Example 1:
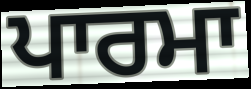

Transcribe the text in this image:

ਪਾਰਮਾ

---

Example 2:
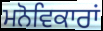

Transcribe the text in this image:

ਮਨੋਵਿਕਾਰਾਂ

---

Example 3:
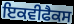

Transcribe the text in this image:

ਇਕਵੀਫੈਕਸ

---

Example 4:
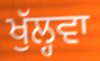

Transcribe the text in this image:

ਖੁੱਲ੍ਹਵਾ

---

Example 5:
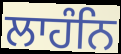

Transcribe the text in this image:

ਲਾਹੰਨਿ